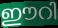
ഈറി